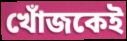
খোঁজকেই